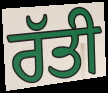
ਰੱਤੀ